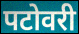
पटोवरी